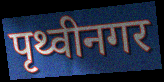
पृथ्वीनगर